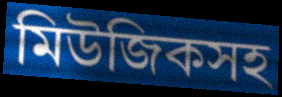
মিউজিকসহ